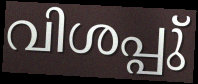
വിശപ്പു്